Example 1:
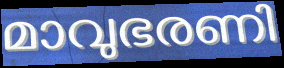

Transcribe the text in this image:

മാവുഭരണി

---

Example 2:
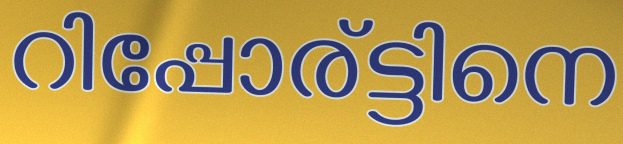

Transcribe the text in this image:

റിപ്പോര്ട്ടിനെ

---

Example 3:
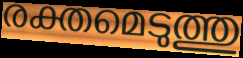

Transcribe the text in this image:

രക്തമെടുത്തു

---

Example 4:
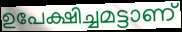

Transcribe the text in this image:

ഉപേക്ഷിച്ചമട്ടാണ്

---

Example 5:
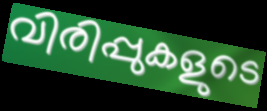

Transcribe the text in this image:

വിരിപ്പുകളുടെ